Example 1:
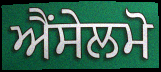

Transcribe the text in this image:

ਐਂਸੇਲਮੋ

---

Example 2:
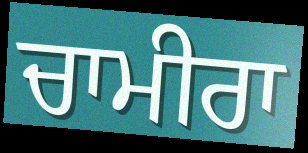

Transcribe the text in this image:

ਚਾਮੀਰਾ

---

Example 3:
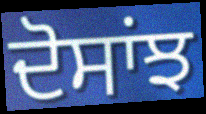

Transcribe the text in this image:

ਦੋਸਾਂਝ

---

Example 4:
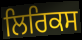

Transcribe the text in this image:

ਲਿਰਿਕਸ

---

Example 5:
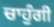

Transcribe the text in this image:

ਚਾਹੁੰਗੀ